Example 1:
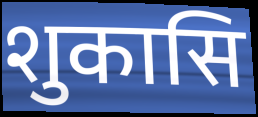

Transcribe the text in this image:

शुकासि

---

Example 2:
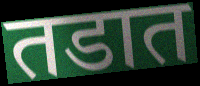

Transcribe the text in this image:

तडात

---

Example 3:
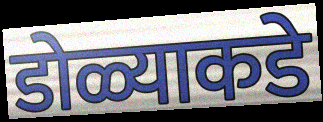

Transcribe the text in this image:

डोळ्याकडे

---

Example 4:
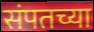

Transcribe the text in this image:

संपतच्या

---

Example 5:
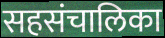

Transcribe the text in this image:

सहसंचालिका